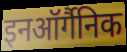
इनऑर्गैनिक